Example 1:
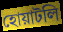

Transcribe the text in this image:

হোয়াটলি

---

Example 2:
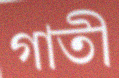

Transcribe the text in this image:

গাতী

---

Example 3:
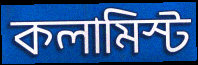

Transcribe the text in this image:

কলামিস্ট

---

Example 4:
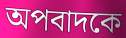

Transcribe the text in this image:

অপবাদকে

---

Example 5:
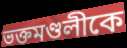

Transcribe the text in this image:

ভক্তমণ্ডলীকে